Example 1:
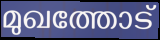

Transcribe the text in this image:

മുഖത്തോട്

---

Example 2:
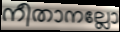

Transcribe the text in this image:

നീതാനല്ലോ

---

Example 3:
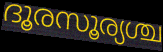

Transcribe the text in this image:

ദൂരസൂര്യശ്ച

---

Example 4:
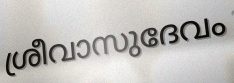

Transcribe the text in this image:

ശ്രീവാസുദേവം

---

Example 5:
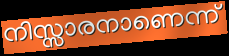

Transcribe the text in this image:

നിസ്സാരനാണെന്ന്